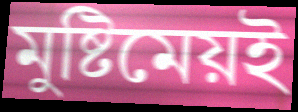
মুষ্টিমেয়ই